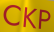
CKP